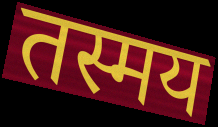
तस्मय